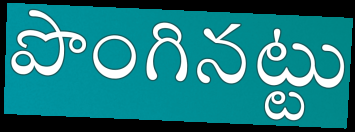
పొంగినట్టు